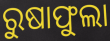
ରୁଷାଫୁଲା